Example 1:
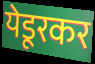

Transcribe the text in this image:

येडूरकर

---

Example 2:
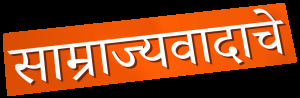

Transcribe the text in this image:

साम्राज्यवादाचे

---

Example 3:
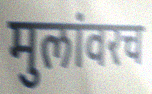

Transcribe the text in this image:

मुलांवरच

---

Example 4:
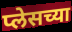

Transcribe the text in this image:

प्लेसच्या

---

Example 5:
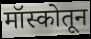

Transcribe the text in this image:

मॉस्कोतून